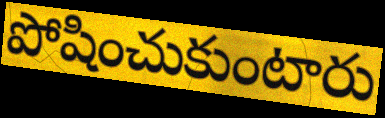
పోషించుకుంటారు